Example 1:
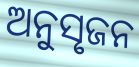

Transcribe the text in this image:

ଅନୁସୃଜନ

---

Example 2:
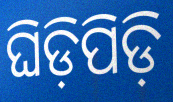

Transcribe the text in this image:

ଘିଡ଼ିପିଡ଼ି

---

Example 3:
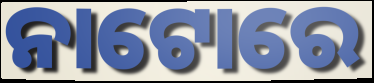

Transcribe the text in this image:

ନାଟୋରେ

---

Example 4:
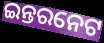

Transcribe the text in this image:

ଇନ୍ତରନେଟ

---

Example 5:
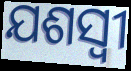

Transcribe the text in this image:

ଯଶସ୍ଵୀ